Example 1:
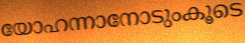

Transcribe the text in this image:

യോഹന്നാനോടുംകൂടെ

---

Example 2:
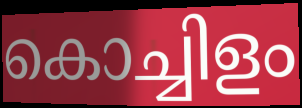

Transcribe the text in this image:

കൊച്ചിളം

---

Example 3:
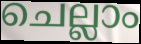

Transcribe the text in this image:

ചെല്ലാം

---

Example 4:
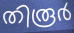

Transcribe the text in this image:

തിരൂർ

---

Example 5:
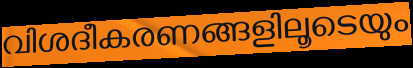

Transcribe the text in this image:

വിശദീകരണങ്ങളിലൂടെയും